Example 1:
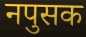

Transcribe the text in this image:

नपुसक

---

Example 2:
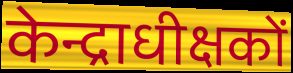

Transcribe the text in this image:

केन्द्राधीक्षकों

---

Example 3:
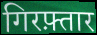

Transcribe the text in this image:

गिरफ़्तार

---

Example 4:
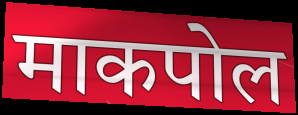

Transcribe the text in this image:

माकपोल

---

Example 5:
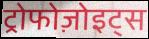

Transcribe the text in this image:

ट्रोफोज़ोइट्स